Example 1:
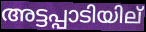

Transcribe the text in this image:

അട്ടപ്പാടിയില്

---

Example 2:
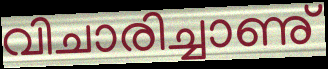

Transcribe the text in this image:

വിചാരിച്ചാണു്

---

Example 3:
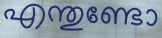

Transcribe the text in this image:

എന്തുണ്ടോ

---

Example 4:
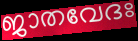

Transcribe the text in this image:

ജാതവേദഃ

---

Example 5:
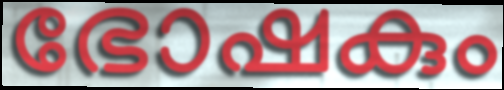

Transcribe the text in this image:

ഭോഷകും